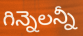
గిన్నెలన్నీ